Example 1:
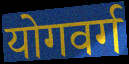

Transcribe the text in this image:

योगवर्ग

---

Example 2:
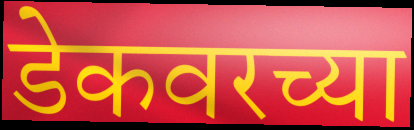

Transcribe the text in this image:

डेकवरच्या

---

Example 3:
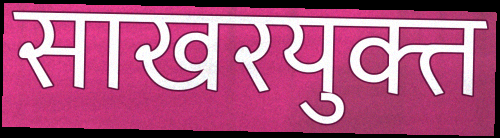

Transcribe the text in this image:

साखरयुक्त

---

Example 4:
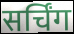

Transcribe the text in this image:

सर्चिंग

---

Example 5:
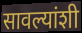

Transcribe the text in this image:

सावल्यांशी